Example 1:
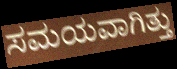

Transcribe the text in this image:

ಸಮಯವಾಗಿತ್ತು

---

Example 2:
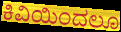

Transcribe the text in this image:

ಕಿವಿಯಿಂದಲೂ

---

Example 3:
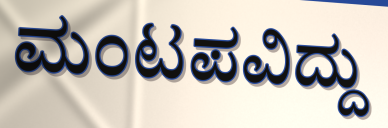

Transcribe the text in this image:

ಮಂಟಪವಿದ್ದು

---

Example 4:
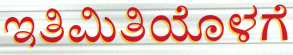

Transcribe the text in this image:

ಇತಿಮಿತಿಯೊಳಗೆ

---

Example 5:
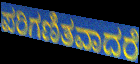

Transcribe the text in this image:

ಪರಿಗಣಿತವಾದರೆ